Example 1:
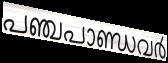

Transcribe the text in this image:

പഞ്ചപാണ്ഡവർ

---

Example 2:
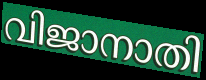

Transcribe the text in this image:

വിജാനാതി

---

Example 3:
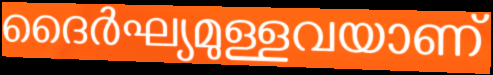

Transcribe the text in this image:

ദൈർഘ്യമുള്ളവയാണ്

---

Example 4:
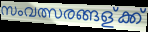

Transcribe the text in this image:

സംവത്സരങ്ങള്ക്ക്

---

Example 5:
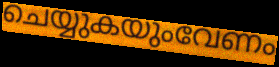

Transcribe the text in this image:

ചെയ്യുകയുംവേണം